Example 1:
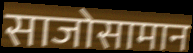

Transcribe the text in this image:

साजोसामान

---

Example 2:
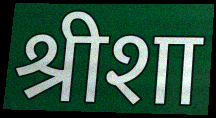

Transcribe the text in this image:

श्रीशा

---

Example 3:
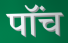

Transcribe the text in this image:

पॉंच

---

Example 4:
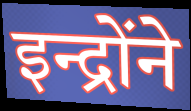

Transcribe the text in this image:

इन्द्रोंने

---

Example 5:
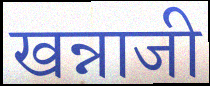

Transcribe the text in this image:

खन्नाजी